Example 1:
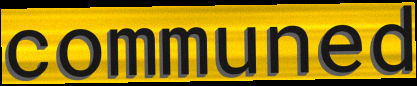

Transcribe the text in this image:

communed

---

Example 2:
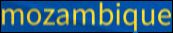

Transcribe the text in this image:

mozambique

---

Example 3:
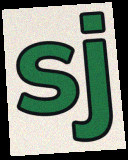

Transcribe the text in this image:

sj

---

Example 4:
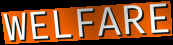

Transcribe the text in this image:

WELFARE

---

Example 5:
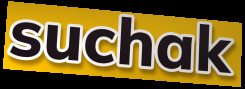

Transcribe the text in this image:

suchak